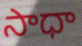
సాధా